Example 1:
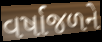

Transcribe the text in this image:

વર્ષાજળને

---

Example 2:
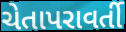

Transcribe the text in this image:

ચેતાપરાવર્તી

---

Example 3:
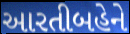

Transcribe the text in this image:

આરતીબહેને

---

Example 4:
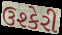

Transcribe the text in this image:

ઉશ્કેરી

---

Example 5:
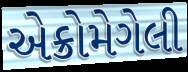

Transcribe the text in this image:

એક્રોમેગેલી